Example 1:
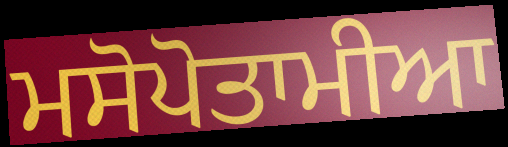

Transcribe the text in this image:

ਮਸੋਪੋਤਾਮੀਆ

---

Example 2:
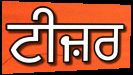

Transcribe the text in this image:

ਟੀਜ਼ਰ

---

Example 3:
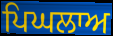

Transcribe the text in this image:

ਪਿਘਲਾਅ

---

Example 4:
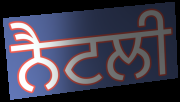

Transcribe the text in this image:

ਨੈਟਲੀ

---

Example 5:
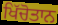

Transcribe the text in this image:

ਖਿੱਚੋਤਾਨ